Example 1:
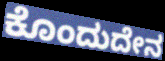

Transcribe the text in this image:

ಕೊಂದುದೇನ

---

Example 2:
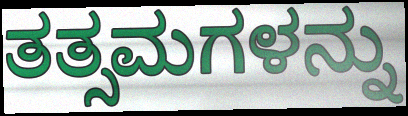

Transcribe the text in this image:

ತತ್ಸಮಗಳನ್ನು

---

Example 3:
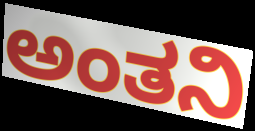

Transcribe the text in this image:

ಅಂತನಿ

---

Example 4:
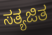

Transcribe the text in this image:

ಸತ್ಯಜಿತ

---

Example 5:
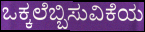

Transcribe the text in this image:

ಒಕ್ಕಲೆಬ್ಬಿಸುವಿಕೆಯ